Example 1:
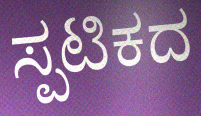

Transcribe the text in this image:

ಸ್ಪಟಿಕದ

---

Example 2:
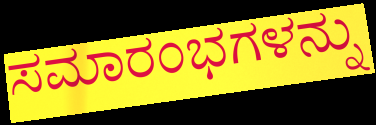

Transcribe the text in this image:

ಸಮಾರಂಭಗಳನ್ನು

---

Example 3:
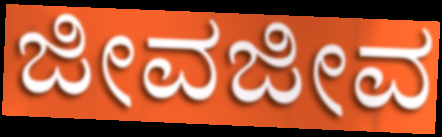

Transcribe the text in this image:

ಜೀವಜೀವ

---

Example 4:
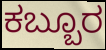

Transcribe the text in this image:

ಕಬ್ಬೂರ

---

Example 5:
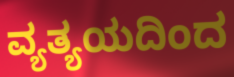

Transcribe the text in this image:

ವ್ಯತ್ಯಯದಿಂದ